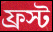
ফ্রস্ট